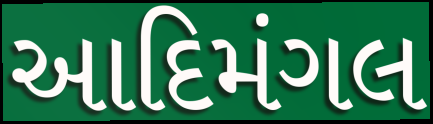
આદિમંગલ